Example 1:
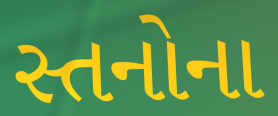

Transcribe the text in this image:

સ્તનોના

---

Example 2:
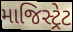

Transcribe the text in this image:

માજિસ્ટ્રેટ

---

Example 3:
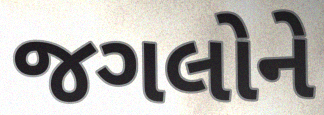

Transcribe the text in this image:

જગલોને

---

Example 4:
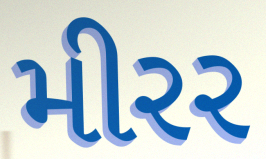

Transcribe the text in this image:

મીરર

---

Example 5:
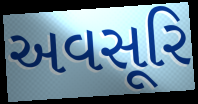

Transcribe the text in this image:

અવસૂરિ